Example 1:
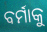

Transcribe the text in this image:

ବର୍ମାକୁ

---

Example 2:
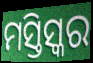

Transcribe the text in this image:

ମସ୍ତିସ୍କର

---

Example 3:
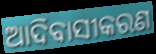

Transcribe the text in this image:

ଆଦିବାସୀକରଣ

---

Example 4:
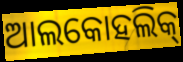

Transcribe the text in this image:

ଆଲକୋହଲିକ୍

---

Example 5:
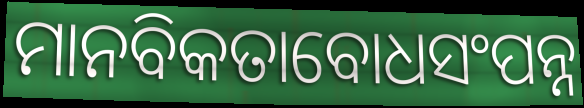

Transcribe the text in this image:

ମାନବିକତାବୋଧସଂପନ୍ନ